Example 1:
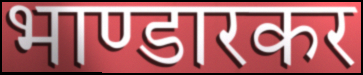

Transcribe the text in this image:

भाण्डारकर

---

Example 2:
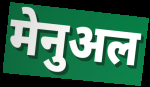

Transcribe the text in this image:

मेनुअल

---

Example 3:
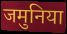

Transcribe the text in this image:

जमुनिया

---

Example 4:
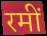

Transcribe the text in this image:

रमीं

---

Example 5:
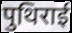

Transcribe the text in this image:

पुथिराई